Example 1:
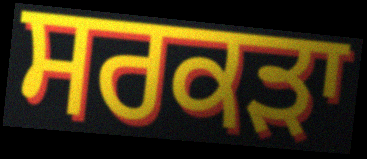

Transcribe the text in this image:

ਸਰਕੜਾ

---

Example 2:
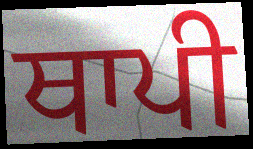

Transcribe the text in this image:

ਥਾਪੀ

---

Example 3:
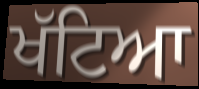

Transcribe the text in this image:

ਖੱਟਿਆ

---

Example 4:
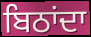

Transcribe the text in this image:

ਬਿਠਾਂਦਾ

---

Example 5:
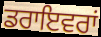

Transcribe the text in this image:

ਡਰਾਇਵਰਾਂ